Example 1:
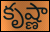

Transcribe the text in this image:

కృష్ణా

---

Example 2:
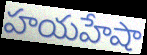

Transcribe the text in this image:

హయహేషా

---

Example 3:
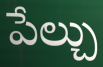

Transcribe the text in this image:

పేల్చు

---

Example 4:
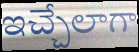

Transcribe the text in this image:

ఇచ్చేలాగా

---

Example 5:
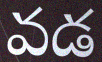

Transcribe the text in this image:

వడ